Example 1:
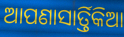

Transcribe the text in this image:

ଆପଣାସାର୍ତ୍ତିକିଆ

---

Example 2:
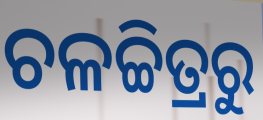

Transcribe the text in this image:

ଚଳଚ୍ଚିତ୍ରରୁ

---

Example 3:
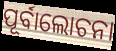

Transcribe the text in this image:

ପୂର୍ବାଲୋଚନା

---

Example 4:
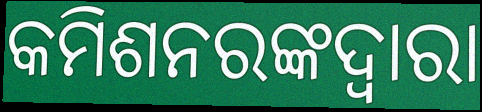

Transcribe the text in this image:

କମିଶନରଙ୍କଦ୍ୱାରା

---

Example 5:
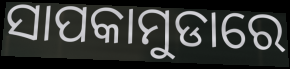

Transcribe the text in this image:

ସାପକାମୁଡାରେ